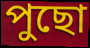
পুছো